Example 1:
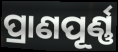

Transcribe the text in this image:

ପ୍ରାଣପୂର୍ଣ୍ଣ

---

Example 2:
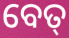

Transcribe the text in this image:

ବେତ୍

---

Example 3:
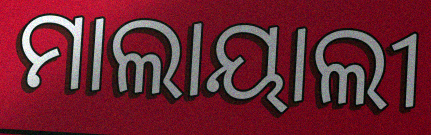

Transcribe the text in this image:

ମାଲାୟାଲୀ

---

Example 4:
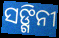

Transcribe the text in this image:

ସଙ୍ଗିନୀ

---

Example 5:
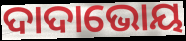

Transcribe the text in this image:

ଦାଦାଭୋୟ